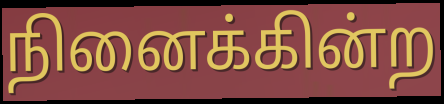
நினைக்கின்ற